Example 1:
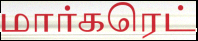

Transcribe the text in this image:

மார்கரெட்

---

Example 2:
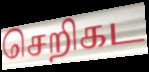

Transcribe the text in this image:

செறிகட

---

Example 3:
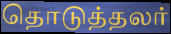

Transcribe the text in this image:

தொடுத்தலர்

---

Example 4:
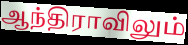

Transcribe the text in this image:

ஆந்திராவிலும்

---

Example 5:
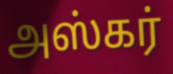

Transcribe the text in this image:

அஸ்கர்